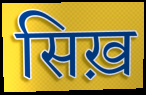
सिख़